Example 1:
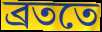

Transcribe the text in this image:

ব্রততে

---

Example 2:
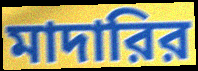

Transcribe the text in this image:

মাদারির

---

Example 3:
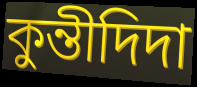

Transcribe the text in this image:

কুন্তীদিদা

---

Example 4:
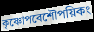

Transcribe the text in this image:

কৃষ্ণোপবেশৌপয়িকং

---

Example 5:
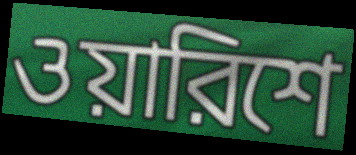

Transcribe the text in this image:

ওয়ারিশে